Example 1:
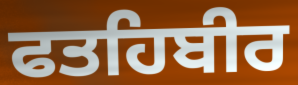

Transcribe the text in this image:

ਫਤਹਿਬੀਰ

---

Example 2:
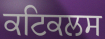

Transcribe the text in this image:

ਕਟਿਕਲਸ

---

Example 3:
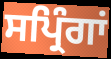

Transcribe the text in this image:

ਸਪ੍ਰਿੰਗਾਂ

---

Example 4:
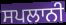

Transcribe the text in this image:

ਸਪਲਾਨੀ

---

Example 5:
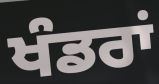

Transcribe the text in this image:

ਖੰਡਰਾਂ